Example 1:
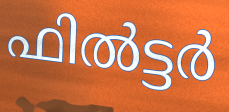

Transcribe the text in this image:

ഫിൽട്ടർ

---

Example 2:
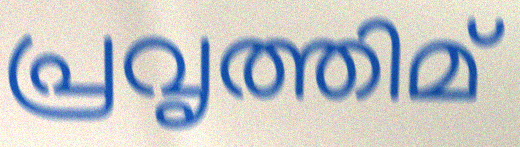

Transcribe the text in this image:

പ്രവൃത്തിമ്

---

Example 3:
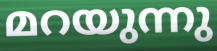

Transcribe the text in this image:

മറയുന്നു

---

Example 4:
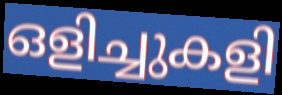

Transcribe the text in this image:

ഒളിച്ചുകളി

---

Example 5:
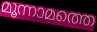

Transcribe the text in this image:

മൂന്നാമത്തെ